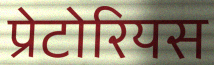
प्रेटोरियस